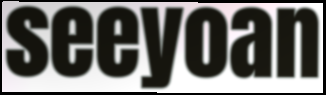
seeyoan